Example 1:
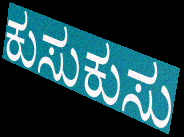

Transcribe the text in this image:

ಕುಸುಕುಸು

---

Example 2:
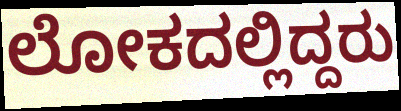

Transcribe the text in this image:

ಲೋಕದಲ್ಲಿದ್ದರು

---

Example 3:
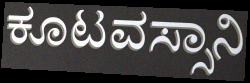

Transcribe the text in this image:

ಕೂಟವಸ್ಸಾನಿ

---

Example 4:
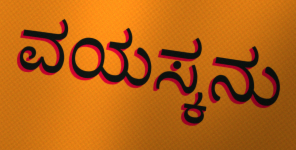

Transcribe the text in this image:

ವಯಸ್ಕನು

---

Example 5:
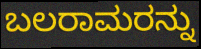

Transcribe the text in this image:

ಬಲರಾಮರನ್ನು